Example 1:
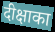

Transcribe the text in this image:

दीक्षाका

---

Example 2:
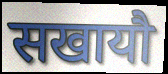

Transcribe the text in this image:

सखायौ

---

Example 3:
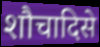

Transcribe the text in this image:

शौचादिसे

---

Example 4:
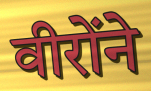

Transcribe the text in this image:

वीरोंने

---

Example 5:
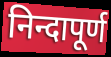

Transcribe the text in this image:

निन्दापूर्ण